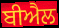
ਬੀਐਲ